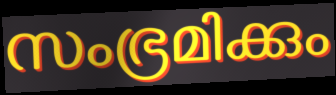
സംഭ്രമിക്കും